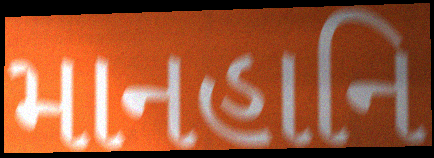
માનહાનિ